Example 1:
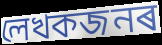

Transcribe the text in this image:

লেখকজনৰ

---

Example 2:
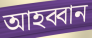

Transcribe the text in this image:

আহব্বান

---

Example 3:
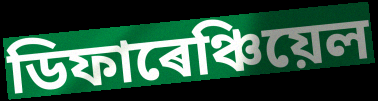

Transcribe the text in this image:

ডিফাৰেঞ্চিয়েল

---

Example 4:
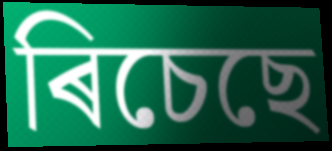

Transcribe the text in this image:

ৰিচেছে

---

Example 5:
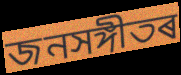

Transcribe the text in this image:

জনসঙ্গীতৰ